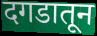
दगडातून